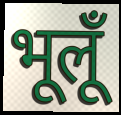
भूलूँ